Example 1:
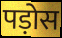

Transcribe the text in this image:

पड़ोस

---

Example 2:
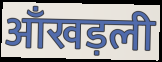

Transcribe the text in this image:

आँखड़ली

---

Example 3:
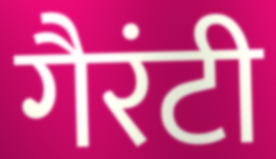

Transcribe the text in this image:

गैरंटी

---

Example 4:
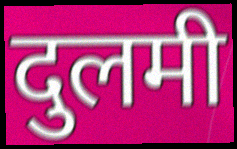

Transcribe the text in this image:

दुलमी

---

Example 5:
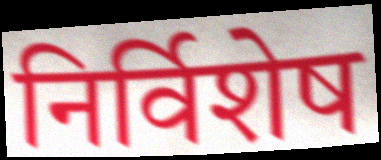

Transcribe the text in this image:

निर्विशेष